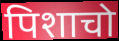
पिशाचो